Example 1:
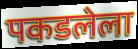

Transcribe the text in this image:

पकडलेला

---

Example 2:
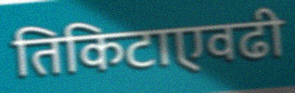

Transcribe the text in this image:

तिकिटाएवढी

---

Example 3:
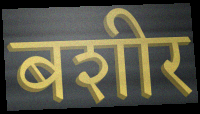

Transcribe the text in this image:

बशीर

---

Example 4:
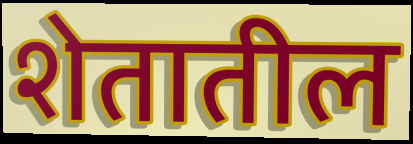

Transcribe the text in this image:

शेतातील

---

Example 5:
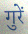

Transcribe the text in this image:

गुरें